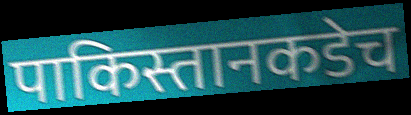
पाकिस्तानकडेच